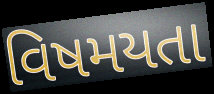
વિષમયતા